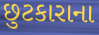
છુટકારાના